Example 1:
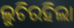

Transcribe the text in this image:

ଲୁଚିରହିଲା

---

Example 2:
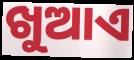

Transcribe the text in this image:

ଖୁଆଏ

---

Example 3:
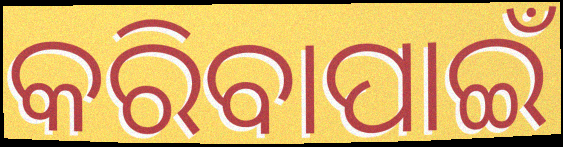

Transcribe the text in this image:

କରିବାପାଇଁ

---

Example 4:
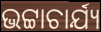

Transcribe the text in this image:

ଭଟ୍ଟାଚାର୍ଯ୍ୟ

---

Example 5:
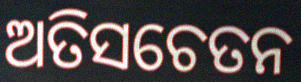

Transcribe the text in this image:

ଅତିସଚେତନ